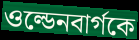
ওল্ডেনবার্গকে